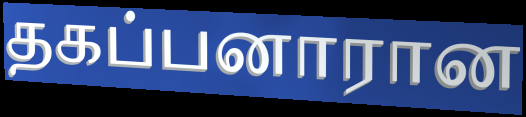
தகப்பனாரான